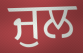
ਜੁਲ